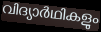
വിദ്യാർഥികളും